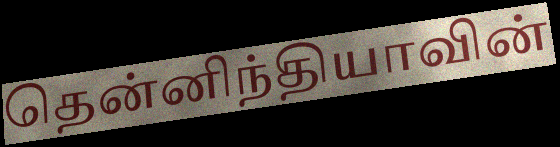
தென்னிந்தியாவின்